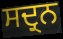
ਸਦ੍ਰਨ